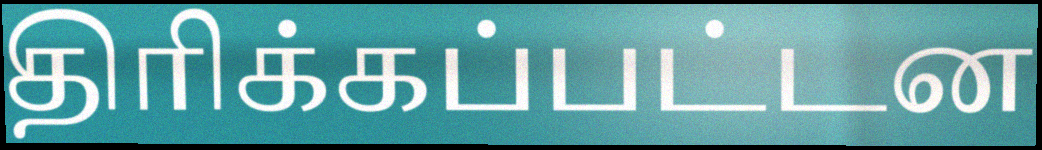
திரிக்கப்பட்டன